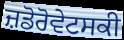
ਜ਼ਡੋਰੋਵੇਟਸਕੀ